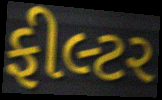
ફીલ્ટર